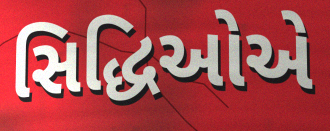
સિદ્ધિઓએ